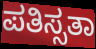
ಪತಿಸ್ಸತಾ